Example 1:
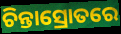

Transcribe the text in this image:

ଚିନ୍ତାସ୍ରୋତରେ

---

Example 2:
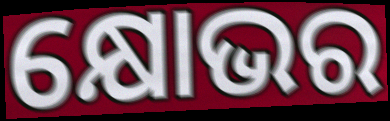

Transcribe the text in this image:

କ୍ଷୋଭର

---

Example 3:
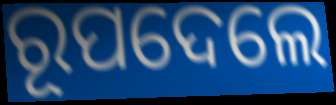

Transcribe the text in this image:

ରୂପଦେଲେ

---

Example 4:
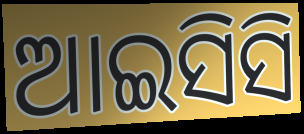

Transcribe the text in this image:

ଆଇସିସି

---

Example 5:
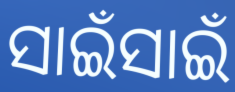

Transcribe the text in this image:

ସାଇଁସାଇଁ